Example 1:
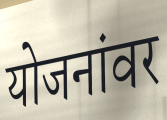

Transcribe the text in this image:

योजनांवर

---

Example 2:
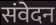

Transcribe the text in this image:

संवेदन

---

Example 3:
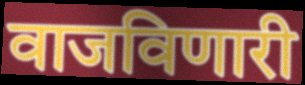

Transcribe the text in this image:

वाजविणारी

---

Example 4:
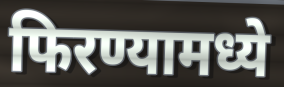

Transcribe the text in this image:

फिरण्यामध्ये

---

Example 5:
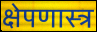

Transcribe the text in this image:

क्षेपणास्त्र